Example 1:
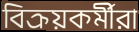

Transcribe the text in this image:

বিক্রয়কর্মীরা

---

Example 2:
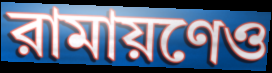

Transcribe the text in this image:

রামায়ণেও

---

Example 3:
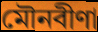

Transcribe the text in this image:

মৌনবীণা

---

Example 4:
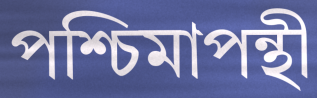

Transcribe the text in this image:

পশ্চিমাপন্থী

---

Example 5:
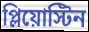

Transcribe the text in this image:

প্লিয়োস্টিন